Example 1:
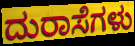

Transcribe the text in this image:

ದುರಾಸೆಗಳು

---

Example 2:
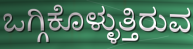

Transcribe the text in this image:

ಒಗ್ಗಿಕೊಳ್ಳುತ್ತಿರುವ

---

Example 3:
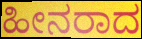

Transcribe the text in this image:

ಹೀನರಾದ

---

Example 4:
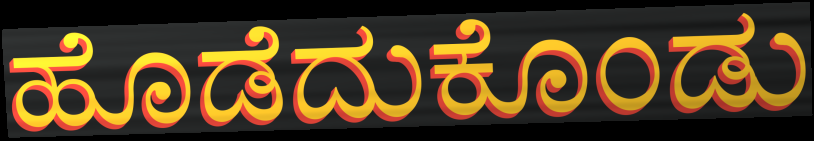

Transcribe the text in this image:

ಹೊಡೆದುಕೊಂಡು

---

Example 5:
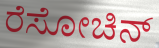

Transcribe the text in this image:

ರೆಸೋಚಿನ್